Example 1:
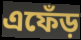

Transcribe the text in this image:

এফেঁড়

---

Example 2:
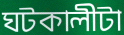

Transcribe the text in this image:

ঘটকালীটা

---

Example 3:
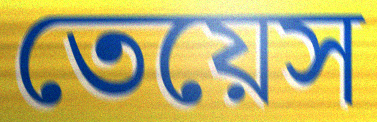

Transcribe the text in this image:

তেয়েস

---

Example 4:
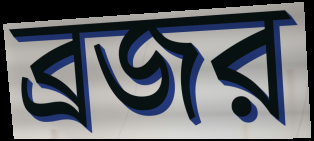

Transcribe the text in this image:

ব্রজর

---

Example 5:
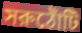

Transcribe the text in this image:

সরুঠোঁটি